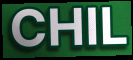
CHIL